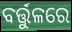
ବର୍ତ୍ତୁଳରେ